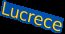
Lucrece